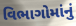
વિભાગોમાંનું